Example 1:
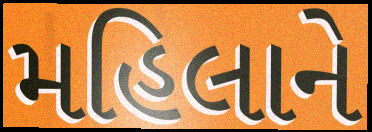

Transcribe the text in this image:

મહિલાને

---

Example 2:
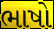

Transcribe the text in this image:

ભાષો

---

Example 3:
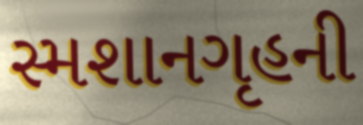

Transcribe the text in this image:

સ્મશાનગૃહની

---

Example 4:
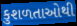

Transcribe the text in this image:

કુશળતાઓથી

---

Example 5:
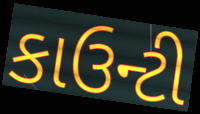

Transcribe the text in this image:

કાઉન્ટી